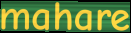
mahare